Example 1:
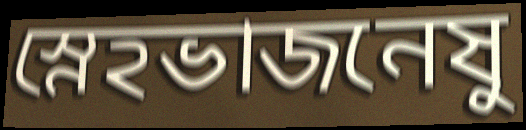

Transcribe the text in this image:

স্নেহভাজনেষু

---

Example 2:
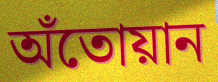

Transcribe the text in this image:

অঁতোয়ান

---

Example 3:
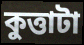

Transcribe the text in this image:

কুত্তাটা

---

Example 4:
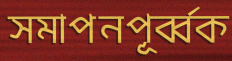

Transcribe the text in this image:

সমাপনপূর্ব্বক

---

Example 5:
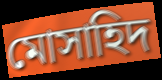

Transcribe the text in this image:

মোসাহিদ